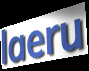
laeru